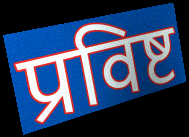
प्रविष्ट